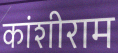
कांशीराम